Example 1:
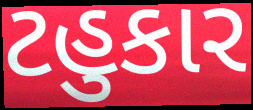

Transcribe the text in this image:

ટહુકાર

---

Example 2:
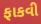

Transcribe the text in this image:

ફાકવી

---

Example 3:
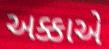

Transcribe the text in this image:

અક્કાએ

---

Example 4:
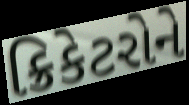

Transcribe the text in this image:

ક્રિકેટરોને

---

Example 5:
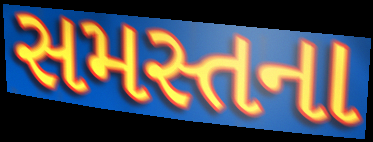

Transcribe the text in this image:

સમસ્તના